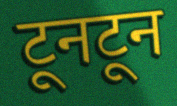
टूनटून